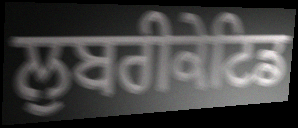
ਲੁਬਰੀਕੇਟਿਡ